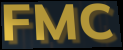
FMC